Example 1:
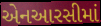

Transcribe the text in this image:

એનઆરસીમાં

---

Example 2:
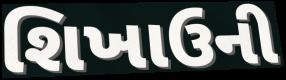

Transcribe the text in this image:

શિખાઉની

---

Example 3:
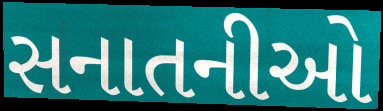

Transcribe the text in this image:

સનાતનીઓ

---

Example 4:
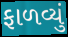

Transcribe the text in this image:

ફાળવ્યું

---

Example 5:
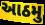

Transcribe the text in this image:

આઠમુ